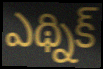
ఎథ్నిక్